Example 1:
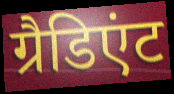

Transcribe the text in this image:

ग्रैडिएंट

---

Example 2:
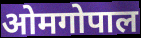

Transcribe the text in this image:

ओमगोपाल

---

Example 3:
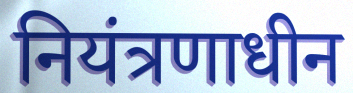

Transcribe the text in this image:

नियंत्रणाधीन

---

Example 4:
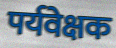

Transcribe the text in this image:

पर्यवेक्षक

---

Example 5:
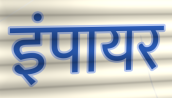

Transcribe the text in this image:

इंपायर